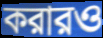
করারও